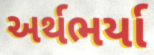
અર્થભર્યા